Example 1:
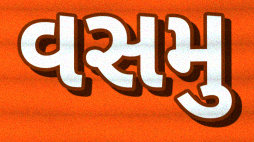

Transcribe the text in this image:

વસમુ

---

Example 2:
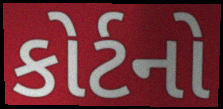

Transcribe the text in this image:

કોર્ટનો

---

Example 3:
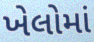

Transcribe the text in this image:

ખેલોમાં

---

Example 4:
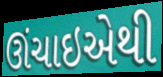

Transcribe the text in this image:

ઊંચાઇએથી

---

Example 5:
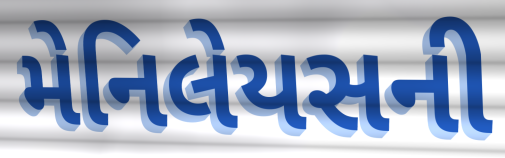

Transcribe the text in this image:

મેનિલેયસની